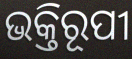
ଭକ୍ତିରୂପୀ